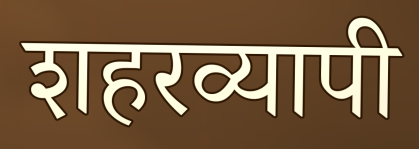
शहरव्यापी